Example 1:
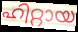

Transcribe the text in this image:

ഹിറ്റായ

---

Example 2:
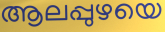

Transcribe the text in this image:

ആലപ്പുഴയെ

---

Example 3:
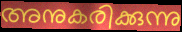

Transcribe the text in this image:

അനുകരിക്കുന്നു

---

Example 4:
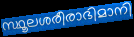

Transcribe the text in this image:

സ്ഥൂലശരീരാഭിമാനി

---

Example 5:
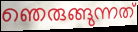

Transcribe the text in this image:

ഞെരുങ്ങുന്നത്